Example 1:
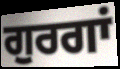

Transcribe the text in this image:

ਗੁਰਗਾਂ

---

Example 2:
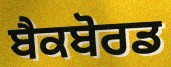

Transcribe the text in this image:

ਬੈਕਬੋਰਡ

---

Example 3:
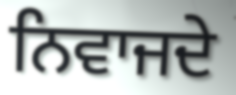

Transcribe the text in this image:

ਨਿਵਾਜਦੇ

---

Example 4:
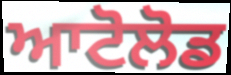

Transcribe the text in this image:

ਆਟੋਲੋਡ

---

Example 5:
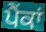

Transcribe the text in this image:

ਪੈਂਕਾਂ